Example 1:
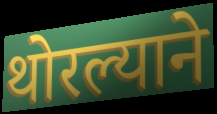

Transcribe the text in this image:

थोरल्याने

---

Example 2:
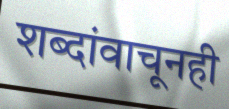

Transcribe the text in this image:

शब्दांवाचूनही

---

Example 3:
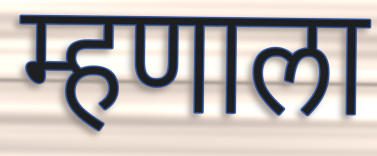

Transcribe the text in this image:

म्हणाला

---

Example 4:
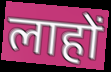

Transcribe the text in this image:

लाहों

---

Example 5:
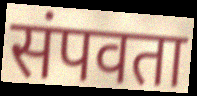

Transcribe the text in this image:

संपवता